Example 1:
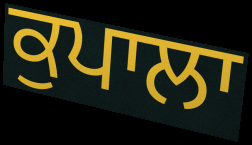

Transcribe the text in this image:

ਕੁਪਾਲਾ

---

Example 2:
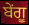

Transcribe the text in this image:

ਬੇਂਗੂ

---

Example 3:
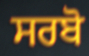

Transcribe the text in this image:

ਸਰਬੋ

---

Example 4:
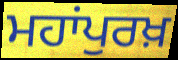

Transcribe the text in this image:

ਮਹਾਂਪੁਰਖ਼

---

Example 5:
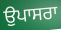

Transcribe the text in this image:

ਉਪਾਸਰਾ